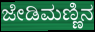
ಜೇಡಿಮಣ್ಣಿನ